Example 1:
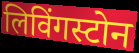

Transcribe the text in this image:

लिविंगस्टोन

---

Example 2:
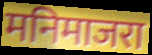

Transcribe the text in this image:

मनिमाजरा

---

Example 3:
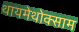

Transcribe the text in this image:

थायमेथोक्साम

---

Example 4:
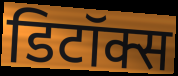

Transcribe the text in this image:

डिटॉक्स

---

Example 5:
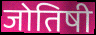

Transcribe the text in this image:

जोतिषी